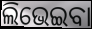
ଲିଭେଇବା